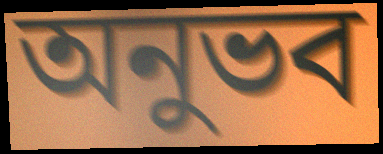
অনুভব